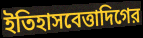
ইতিহাসবেত্তাদিগের